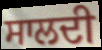
ਸਾਲਦੀ